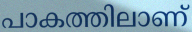
പാകത്തിലാണ്